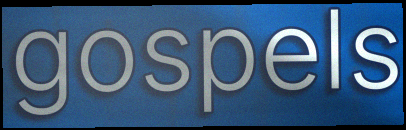
gospels